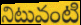
నిటువంటి